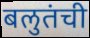
बलुतंची